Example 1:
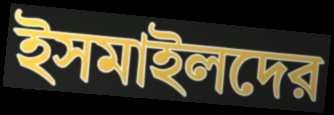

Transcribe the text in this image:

ইসমাইলদের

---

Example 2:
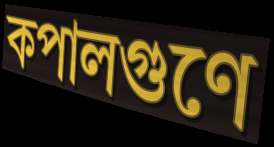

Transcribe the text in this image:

কপালগুণে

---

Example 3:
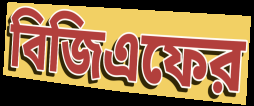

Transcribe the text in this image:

বিজিএফের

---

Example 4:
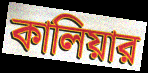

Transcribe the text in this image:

কালিয়ার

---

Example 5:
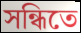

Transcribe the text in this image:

সন্ধিতে